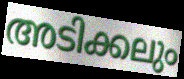
അടിക്കലും